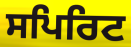
ਸਪਿਰਿਟ